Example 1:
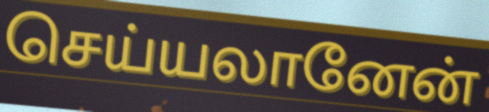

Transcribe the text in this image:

செய்யலானேன்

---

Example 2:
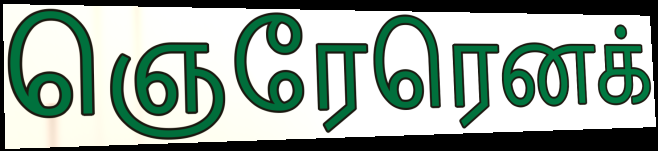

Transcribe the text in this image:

ஞெரேரெனக்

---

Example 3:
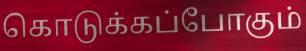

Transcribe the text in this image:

கொடுக்கப்போகும்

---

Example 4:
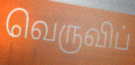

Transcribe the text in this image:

வெருவிப்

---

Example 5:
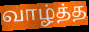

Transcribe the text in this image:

வாழ்த்த